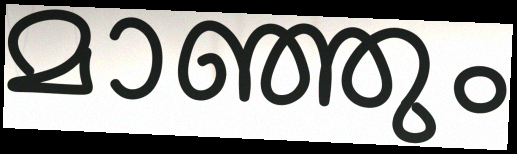
മാഞ്ഞും